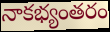
నాకభ్యంతరం